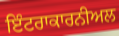
ਇੰਟਰਾਕਾਰਨੀਅਲ